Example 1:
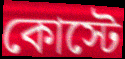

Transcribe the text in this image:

কোস্টে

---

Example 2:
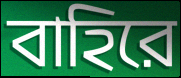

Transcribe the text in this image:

বাহিরে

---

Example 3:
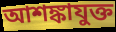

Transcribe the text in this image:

আশঙ্কাযুক্ত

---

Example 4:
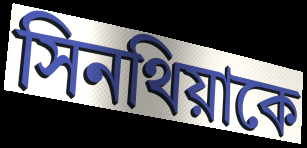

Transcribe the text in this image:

সিনথিয়াকে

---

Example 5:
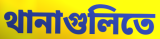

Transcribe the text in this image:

থানাগুলিতে